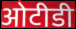
ओटीडी